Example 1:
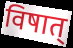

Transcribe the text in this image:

विषात्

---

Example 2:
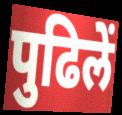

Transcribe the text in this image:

पुढिलें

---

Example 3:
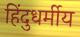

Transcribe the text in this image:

हिंदुधर्मीय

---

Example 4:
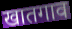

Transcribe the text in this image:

खातगाव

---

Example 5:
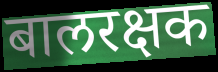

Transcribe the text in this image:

बालरक्षक